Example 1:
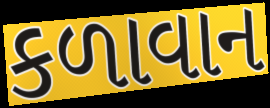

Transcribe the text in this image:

કળાવાન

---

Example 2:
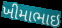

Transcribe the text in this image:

ખીમાભાઇ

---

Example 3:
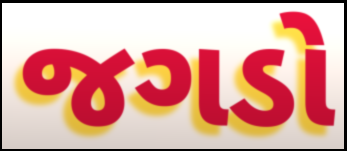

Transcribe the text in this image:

જગડો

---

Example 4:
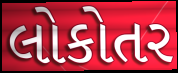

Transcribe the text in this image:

લોકોતર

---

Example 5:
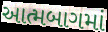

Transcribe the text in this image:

આત્મબાગમાં